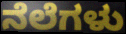
ನೆಲೆಗಳು